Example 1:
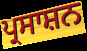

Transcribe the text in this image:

ਪ੍ਰਸਾਸ਼ਨ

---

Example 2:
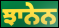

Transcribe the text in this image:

ਝਾਨੇਨ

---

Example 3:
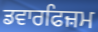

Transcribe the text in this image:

ਡਵਾਰਫਿਜ਼ਮ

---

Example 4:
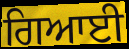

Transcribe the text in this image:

ਗਿਆਈ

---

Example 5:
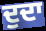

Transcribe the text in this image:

ਦੁਦਾ